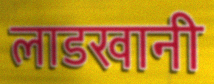
लाडखानी